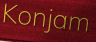
Konjam